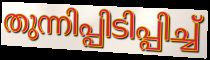
തുന്നിപ്പിടിപ്പിച്ച്